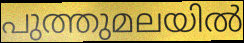
പുത്തുമലയിൽ